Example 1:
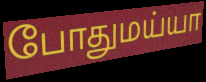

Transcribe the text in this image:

போதுமய்யா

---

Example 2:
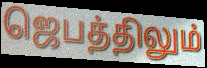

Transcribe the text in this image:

ஜெபத்திலும்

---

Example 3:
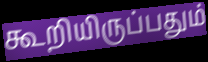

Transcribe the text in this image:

கூறியிருப்பதும்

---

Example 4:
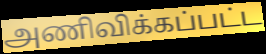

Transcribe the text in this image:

அணிவிக்கப்பட்ட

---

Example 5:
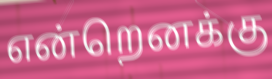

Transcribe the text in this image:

என்றெனக்கு